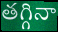
తగ్గినా